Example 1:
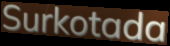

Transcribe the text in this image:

Surkotada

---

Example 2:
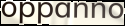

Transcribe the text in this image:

oppanno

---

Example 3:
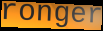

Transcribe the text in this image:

ronger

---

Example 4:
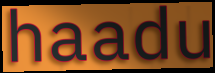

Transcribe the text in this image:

haadu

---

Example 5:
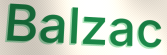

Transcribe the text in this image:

Balzac